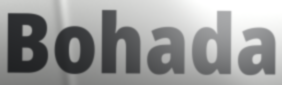
Bohada